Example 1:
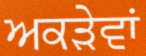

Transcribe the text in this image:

ਅਕੜੇਵਾਂ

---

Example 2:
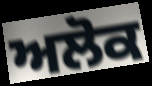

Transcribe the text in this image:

ਅਲੋਕ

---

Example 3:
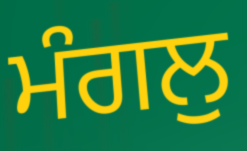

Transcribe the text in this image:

ਮੰਗਲੁ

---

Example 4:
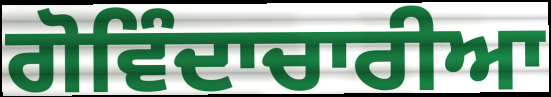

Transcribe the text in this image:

ਗੋਵਿੰਦਾਚਾਰੀਆ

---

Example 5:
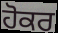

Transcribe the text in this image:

ਹੋਕਰ